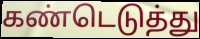
கண்டெடுத்து